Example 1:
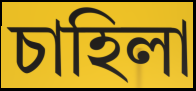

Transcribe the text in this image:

চাহিলা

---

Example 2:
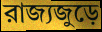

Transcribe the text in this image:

রাজ্যজুড়ে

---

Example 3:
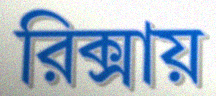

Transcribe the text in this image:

রিক্সায়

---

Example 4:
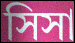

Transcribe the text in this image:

সিসা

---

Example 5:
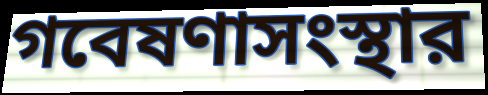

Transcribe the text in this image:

গবেষণাসংস্থার